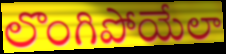
లొంగిపోయేలా